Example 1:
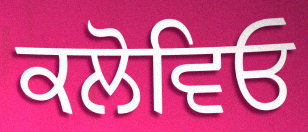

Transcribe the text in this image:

ਕਲੋਵਿਓ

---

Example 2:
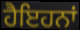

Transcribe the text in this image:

ਹੈਇਹਨਾਂ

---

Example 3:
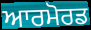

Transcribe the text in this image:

ਆਰਮੋਰਡ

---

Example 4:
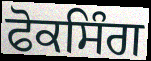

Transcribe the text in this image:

ਫੋਕਸਿੰਗ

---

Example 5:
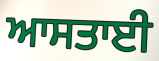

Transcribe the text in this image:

ਆਸਤਾਈ